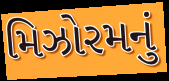
મિઝોરમનું